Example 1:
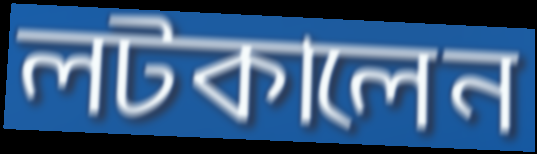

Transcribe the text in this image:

লটকালেন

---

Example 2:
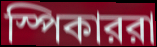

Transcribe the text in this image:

স্পিকাররা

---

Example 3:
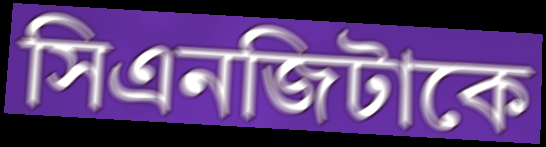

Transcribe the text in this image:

সিএনজিটাকে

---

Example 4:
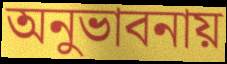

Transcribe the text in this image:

অনুভাবনায়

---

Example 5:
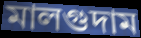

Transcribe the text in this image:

মালগুদাম